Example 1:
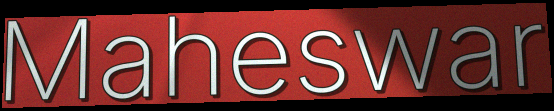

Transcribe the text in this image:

Maheswar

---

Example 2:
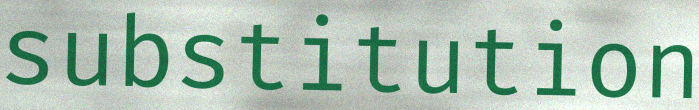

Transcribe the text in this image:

substitution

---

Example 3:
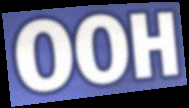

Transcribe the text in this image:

OOH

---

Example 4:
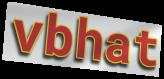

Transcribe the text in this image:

vbhat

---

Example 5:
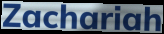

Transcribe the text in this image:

Zachariah